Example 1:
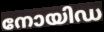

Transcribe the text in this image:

നോയിഡ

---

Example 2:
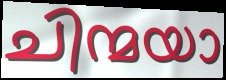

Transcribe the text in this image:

ചിന്മയാ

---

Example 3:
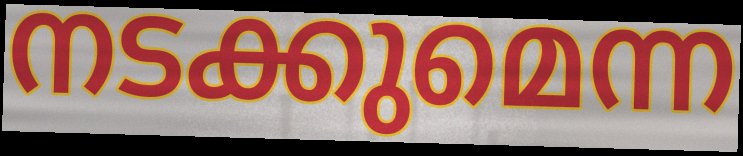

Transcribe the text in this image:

നടക്കുമെന്ന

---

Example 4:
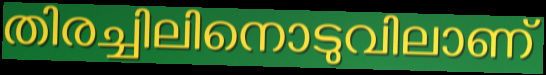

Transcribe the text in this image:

തിരച്ചിലിനൊടുവിലാണ്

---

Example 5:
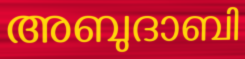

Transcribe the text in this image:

അബുദാബി